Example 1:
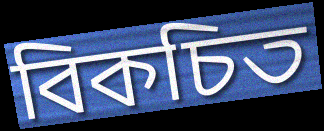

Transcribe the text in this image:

বিকচিত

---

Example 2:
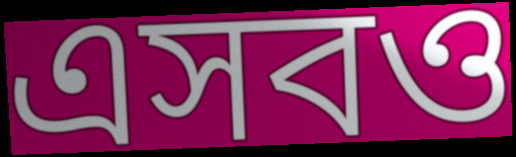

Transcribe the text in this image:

এসবও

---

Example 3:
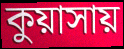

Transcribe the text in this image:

কুয়াসায়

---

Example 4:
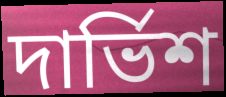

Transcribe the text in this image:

দার্ভিশ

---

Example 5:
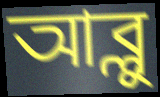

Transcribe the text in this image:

আব্লু